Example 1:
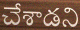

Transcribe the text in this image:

చేశాడని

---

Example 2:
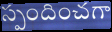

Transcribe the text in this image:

స్పందించగా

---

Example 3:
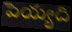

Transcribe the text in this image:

పెయ్యది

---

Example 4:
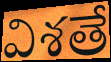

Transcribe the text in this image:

విశతే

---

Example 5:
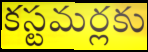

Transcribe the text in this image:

కస్టమర్లకు